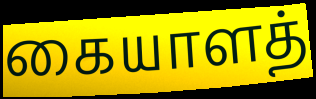
கையாளத்